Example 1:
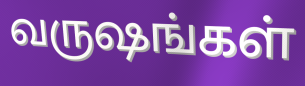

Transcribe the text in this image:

வருஷங்கள்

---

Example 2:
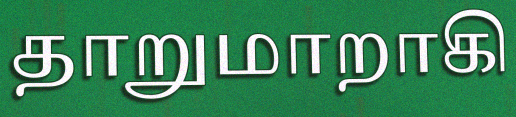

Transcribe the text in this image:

தாறுமாறாகி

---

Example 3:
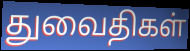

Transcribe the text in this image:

துவைதிகள்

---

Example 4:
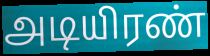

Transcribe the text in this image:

அடியிரண்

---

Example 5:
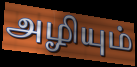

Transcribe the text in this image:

அழியும்